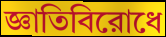
জ্ঞাতিবিরোধে